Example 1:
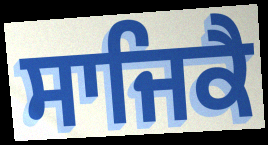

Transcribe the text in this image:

ਸਾਜਿਕੈ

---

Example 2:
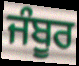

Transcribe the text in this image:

ਜੰਬੂਰ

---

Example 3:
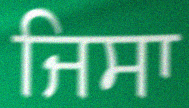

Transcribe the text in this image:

ਜਿਸਾ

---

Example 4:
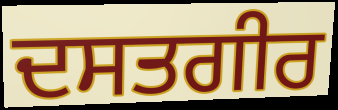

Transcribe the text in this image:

ਦਸਤਗੀਰ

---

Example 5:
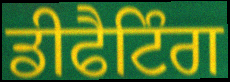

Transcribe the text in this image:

ਡੀਫੈਟਿੰਗ